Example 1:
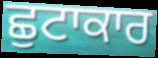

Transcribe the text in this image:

ਛੁਟਾਕਾਰ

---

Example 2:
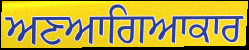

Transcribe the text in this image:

ਅਣਆਗਿਆਕਾਰ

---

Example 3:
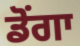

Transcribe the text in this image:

ਡੋਂਗਾ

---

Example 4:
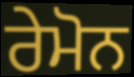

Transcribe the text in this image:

ਰੇਮੋਨ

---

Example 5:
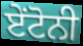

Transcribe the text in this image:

ਏਂਟੋਨੀ